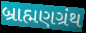
બ્રાહ્મણગ્રંથ